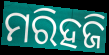
ମରିହଜି